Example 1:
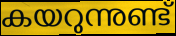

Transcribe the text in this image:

കയറുന്നുണ്ട്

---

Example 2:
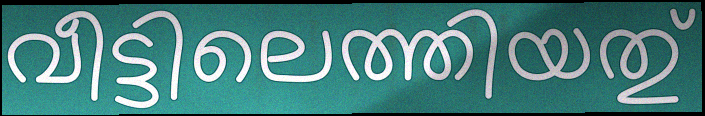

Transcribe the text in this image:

വീട്ടിലെത്തിയതു്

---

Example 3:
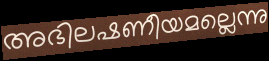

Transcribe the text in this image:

അഭിലഷണീയമല്ലെന്നു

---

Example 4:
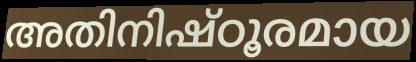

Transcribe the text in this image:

അതിനിഷ്ഠൂരമായ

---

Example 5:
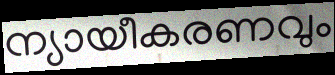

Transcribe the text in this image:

ന്യായീകരണവും